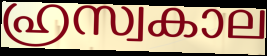
ഹ്രസ്വകാല